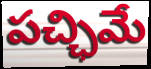
పచ్ఛిమే